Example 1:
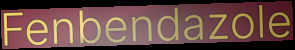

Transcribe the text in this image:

Fenbendazole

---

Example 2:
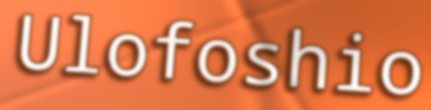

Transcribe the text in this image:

Ulofoshio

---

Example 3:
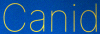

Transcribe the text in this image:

Canid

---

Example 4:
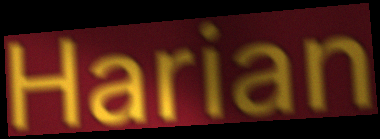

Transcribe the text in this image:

Harian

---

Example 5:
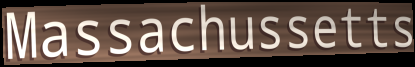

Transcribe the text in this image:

Massachussetts